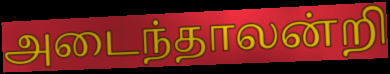
அடைந்தாலன்றி